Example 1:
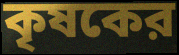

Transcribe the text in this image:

কৃষকের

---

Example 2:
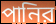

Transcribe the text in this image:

পানির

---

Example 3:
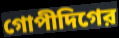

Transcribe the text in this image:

গোপীদিগের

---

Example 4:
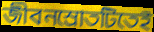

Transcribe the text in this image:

জীবনস্রোতটিতেই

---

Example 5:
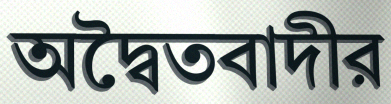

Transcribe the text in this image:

অদ্বৈতবাদীর